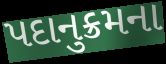
પદાનુક્રમના